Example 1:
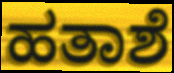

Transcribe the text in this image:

ಹತಾಶೆ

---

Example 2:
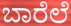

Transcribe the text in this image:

ಬಾರೆಲೆ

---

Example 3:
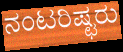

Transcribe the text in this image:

ನಂಟರಿಷ್ಟರು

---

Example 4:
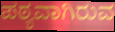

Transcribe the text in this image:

ಪಠ್ಯವಾಗಿರುವ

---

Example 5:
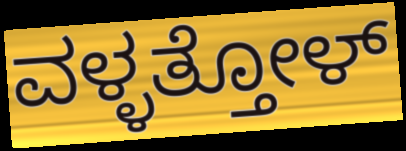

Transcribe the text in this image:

ವಳ್ಳತ್ತೋಳ್